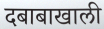
दबाबाखाली